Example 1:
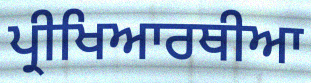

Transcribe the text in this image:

ਪ੍ਰੀਖਿਆਰਥੀਆ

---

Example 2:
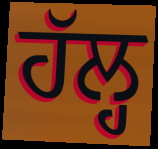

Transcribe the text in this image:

ਹੱਲ੍ਹ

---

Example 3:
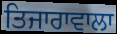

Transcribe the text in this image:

ਤਿਜਾਰਾਵਾਲਾ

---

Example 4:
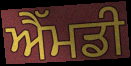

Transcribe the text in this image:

ਐੱਮਡੀ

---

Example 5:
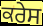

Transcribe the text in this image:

ਕਰੇਸ